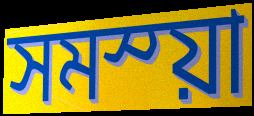
সমস্য়া